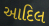
આદિલ